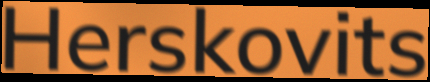
Herskovits